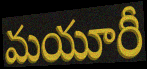
మయూరీ